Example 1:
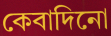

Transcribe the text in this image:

কেবাদিনো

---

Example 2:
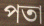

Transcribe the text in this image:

পতা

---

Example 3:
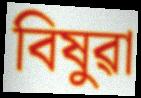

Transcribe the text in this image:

বিষুৱা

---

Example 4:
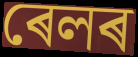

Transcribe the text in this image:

ৰেলৰ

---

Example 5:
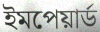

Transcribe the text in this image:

ইমপেয়াৰ্ড